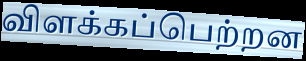
விளக்கப்பெற்றன